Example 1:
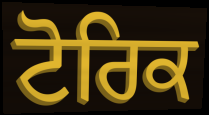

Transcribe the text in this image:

ਟੋਰਿਕ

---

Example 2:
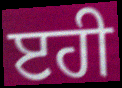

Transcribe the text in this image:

ੲਹੀ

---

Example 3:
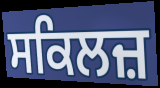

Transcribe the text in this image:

ਸਕਿਲਜ਼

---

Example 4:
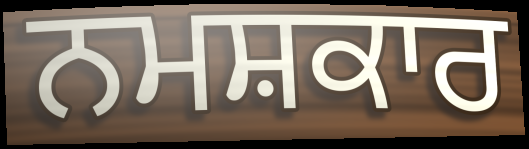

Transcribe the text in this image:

ਨਮਸ਼ਕਾਰ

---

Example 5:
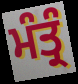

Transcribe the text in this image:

ਮੰਤ੍ਰੰ